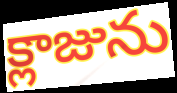
క్లాజును